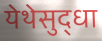
येथेसुद्धा